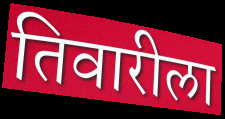
तिवारीला